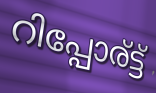
റിപ്പോര്ട്ട്